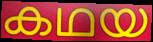
കഥയ